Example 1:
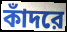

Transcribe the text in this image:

কাঁদরে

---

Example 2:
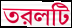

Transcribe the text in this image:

তরলটি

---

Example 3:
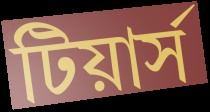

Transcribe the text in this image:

টিয়ার্স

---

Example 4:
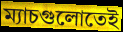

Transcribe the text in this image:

ম্যাচগুলোতেই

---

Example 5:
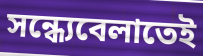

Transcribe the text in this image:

সন্ধ্যেবেলাতেই